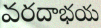
వరదాభయ